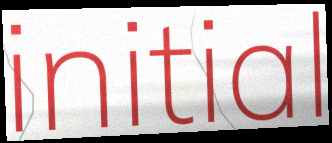
initial